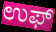
ಉಫ್